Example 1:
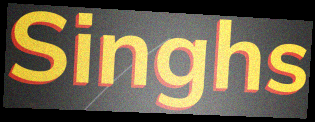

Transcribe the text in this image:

Singhs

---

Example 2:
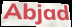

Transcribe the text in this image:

Abjad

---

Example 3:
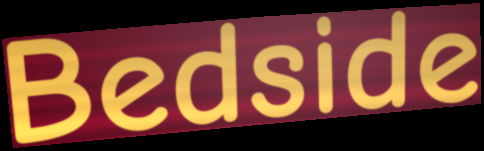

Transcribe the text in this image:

Bedside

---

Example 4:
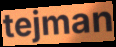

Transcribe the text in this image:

tejman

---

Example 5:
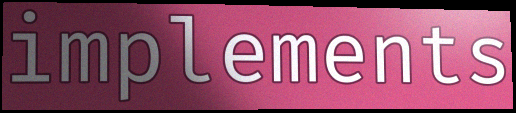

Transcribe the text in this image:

implements